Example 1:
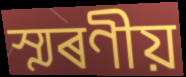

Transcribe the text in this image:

স্মৰণীয়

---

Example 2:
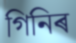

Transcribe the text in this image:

গিনিৰ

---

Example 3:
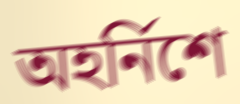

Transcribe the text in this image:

অহৰ্নিশে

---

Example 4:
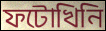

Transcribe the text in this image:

ফটোখিনি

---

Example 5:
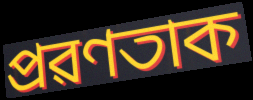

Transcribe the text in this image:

প্ৰৱণতাক